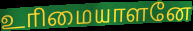
உரிமையாளனே